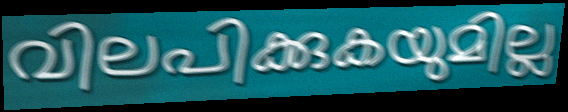
വിലപിക്കുകയുമില്ല